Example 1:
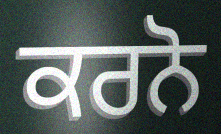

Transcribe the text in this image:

ਕਰਨੋ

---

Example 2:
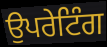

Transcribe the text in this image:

ਉਪਰੇਟਿੰਗ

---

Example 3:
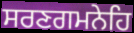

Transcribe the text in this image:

ਸਰਣਗਮਨੇਹਿ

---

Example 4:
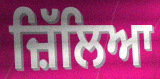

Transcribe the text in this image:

ਜ਼ਿੱਲਿਆ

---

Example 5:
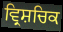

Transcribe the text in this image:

ਵ੍ਰਿਸ਼ਚਿਕ